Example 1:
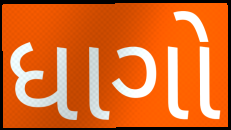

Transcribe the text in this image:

ધાગો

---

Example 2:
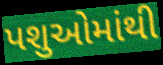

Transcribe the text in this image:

પશુઓમાંથી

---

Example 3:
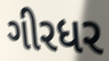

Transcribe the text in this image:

ગીરધર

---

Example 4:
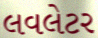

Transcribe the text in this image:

લવલેટર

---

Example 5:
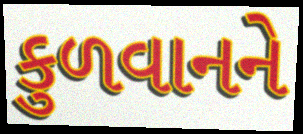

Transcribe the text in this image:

કુળવાનને